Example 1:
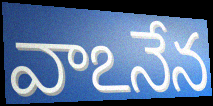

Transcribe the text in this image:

వాఽనేన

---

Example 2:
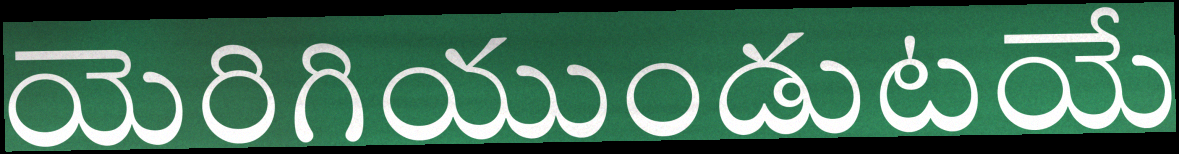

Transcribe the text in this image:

యెరిగియుండుటయే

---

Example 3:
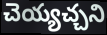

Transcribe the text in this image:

చెయ్యచ్చని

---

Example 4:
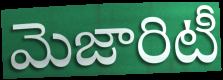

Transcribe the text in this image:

మెజారిటీ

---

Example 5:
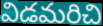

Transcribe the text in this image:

విడమరిచి